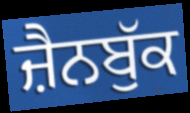
ਜ਼ੈਨਬੁੱਕ